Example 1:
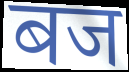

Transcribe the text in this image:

बज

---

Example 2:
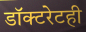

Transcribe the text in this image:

डॉक्‍टरेटही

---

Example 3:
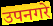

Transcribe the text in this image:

उपनगरे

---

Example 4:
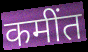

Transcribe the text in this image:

कमींत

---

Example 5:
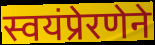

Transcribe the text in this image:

स्वयंप्रेरणेने